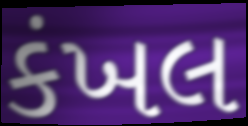
કંખલ